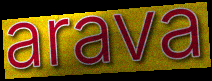
arava